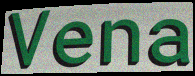
Vena